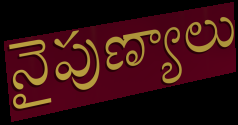
నైపుణ్యాలు